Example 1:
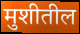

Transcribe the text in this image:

मुशीतील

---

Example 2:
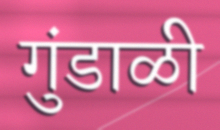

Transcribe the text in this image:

गुंडाळी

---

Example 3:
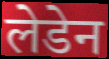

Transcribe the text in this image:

लेडेन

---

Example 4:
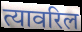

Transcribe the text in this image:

त्यावरिल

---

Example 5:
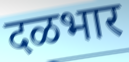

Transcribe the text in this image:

दळभार